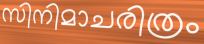
സിനിമാചരിത്രം